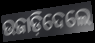
ଉଜାଡ଼ିଦେଲେ